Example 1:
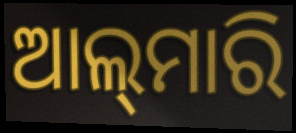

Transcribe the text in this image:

ଆଲ୍‌ମାରି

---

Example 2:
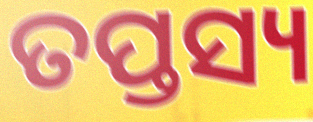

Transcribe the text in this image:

ତପ୍ତସ୍ୟ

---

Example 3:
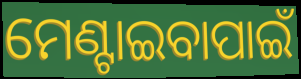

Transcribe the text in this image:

ମେଣ୍ଟାଇବାପାଇଁ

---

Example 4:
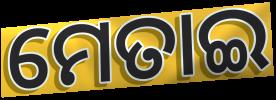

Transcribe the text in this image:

ମେତାଇ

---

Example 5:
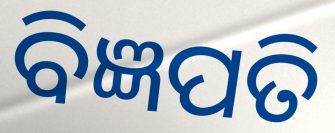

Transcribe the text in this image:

ବିଜ୍ଞପତି